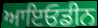
ਆਇਓਡੀਨ